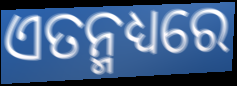
ଏତନ୍ମଧ୍ୟରେ